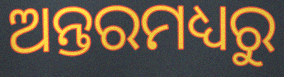
ଅନ୍ତରମଧ୍ୟରୁ